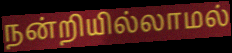
நன்றியில்லாமல்